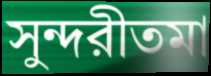
সুন্দরীতমা